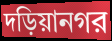
দড়িয়ানগর